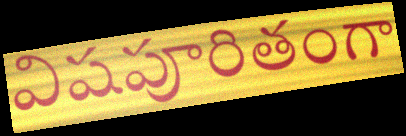
విషపూరితంగా